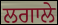
ਲਗਾਲੇ